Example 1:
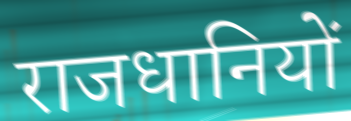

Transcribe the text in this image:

राजधानियों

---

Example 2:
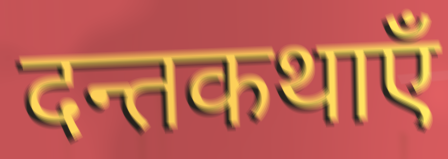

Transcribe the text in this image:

दन्तकथाएँ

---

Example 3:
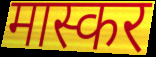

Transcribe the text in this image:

मास्कर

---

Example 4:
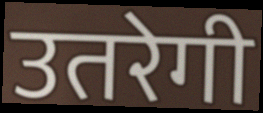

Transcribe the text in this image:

उतरेगी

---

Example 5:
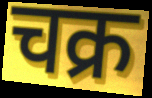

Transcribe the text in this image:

चक्र